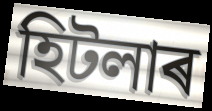
হিটলাৰ